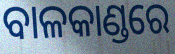
ବାଳକାଣ୍ଡରେ